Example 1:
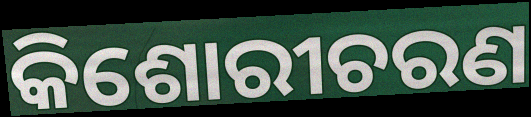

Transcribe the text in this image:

କିଶୋରୀଚରଣ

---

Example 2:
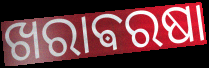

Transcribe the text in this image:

ଖରାଵରଷା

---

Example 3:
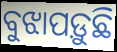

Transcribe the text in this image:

ବୁଝାପଡ଼ୁଛି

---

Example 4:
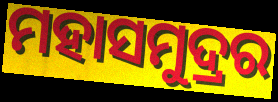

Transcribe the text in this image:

ମହାସମୁଦ୍ରର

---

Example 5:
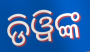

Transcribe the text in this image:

ଡିୱିଙ୍କ